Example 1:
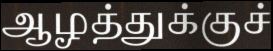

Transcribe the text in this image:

ஆழத்துக்குச்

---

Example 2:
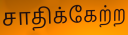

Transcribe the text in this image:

சாதிக்கேற்ற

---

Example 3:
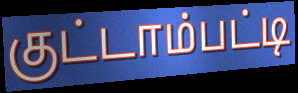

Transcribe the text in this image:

குட்டாம்பட்டி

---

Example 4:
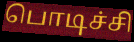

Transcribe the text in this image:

பொடிச்சி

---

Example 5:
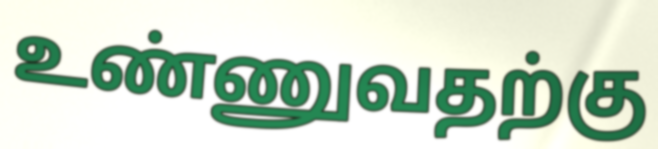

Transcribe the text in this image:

உண்ணுவதற்கு